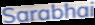
Sarabhai